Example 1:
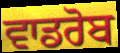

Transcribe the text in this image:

ਵਾਡਰੋਬ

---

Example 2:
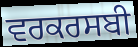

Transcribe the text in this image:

ਵਰਕਰਸਬੀ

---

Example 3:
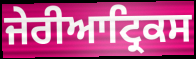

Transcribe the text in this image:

ਜੇਰੀਆਟ੍ਰਿਕਸ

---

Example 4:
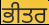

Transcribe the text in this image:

ਭੀਤਰ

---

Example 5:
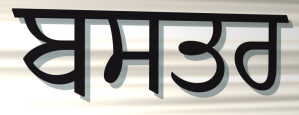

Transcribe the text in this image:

ਬਸਤਰ